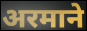
अरमाने